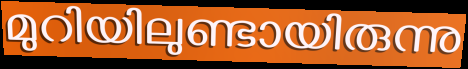
മുറിയിലുണ്ടായിരുന്നു